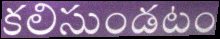
కలిసుండటం